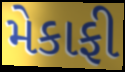
મેકાફી